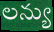
లన్యు